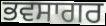
ਭਵਸਾਗਰ